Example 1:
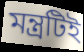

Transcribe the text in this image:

মন্ত্রটিই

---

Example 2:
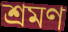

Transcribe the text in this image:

শ্রমণ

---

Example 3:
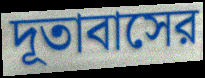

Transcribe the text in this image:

দূতাবাসের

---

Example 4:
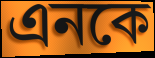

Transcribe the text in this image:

এনকে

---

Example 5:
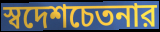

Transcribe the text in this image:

স্বদেশচেতনার